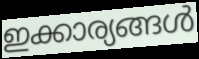
ഇക്കാര്യങ്ങൾ